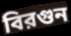
বিরগুন